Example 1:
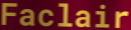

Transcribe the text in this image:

Faclair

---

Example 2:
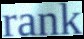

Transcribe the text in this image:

rank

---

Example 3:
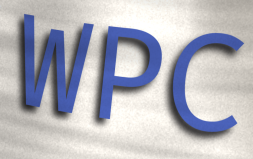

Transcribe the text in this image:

WPC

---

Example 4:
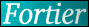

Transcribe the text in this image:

Fortier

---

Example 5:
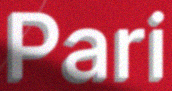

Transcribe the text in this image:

Pari